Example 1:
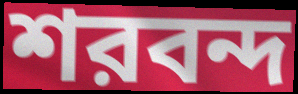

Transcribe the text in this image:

শরবন্দ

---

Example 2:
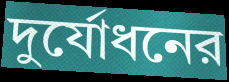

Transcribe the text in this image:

দুর্যোধনের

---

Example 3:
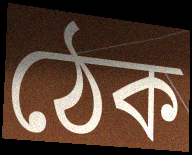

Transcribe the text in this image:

ঠেক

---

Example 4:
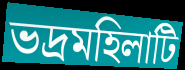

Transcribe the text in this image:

ভদ্রমহিলাটি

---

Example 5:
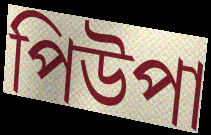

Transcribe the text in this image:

পিউপা